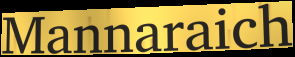
Mannaraich